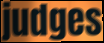
judges